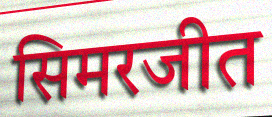
सिमरजीत